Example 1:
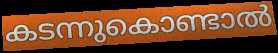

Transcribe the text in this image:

കടന്നുകൊണ്ടാൽ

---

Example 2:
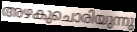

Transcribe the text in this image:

അഴകുചൊരിയുന്നു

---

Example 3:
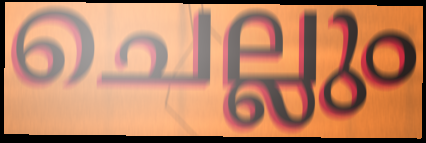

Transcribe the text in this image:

ചെല്ലും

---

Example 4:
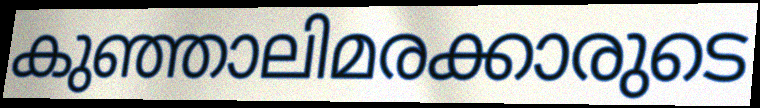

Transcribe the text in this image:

കുഞ്ഞാലിമരക്കാരുടെ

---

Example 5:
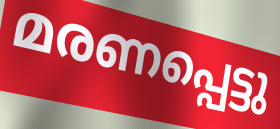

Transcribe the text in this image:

മരണപ്പെട്ടു